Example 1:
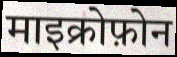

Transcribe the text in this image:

माइक्रोफ़ोन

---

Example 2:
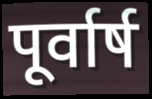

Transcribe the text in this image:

पूर्वार्ष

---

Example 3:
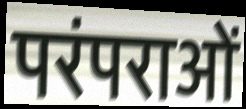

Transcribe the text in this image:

परंपराओं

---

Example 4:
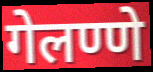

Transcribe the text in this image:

गेलण्णे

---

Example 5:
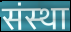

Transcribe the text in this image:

संस्था